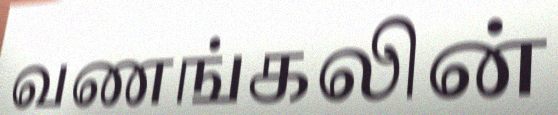
வணங்கலின்